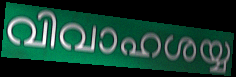
വിവാഹശയ്യ